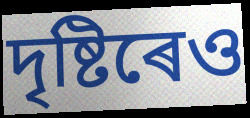
দৃষ্টিৰেও